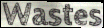
Wastes